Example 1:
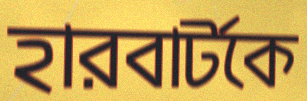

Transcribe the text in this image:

হারবার্টকে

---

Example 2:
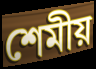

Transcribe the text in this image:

শেমীয়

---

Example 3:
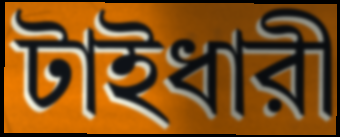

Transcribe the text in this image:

টাইধারী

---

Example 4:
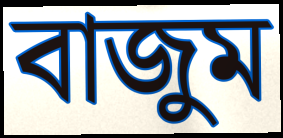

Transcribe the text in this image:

বাজুম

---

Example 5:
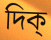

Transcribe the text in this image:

দিক্